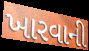
ખારવાની